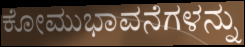
ಕೋಮುಭಾವನೆಗಳನ್ನು